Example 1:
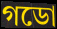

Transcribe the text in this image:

গডো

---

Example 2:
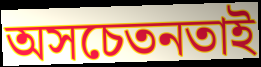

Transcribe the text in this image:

অসচেতনতাই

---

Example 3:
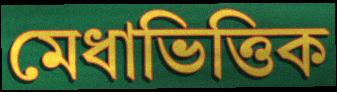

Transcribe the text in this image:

মেধাভিত্তিক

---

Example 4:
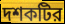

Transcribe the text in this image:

দশকটির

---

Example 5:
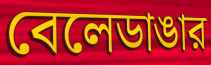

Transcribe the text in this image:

বেলেডাঙার